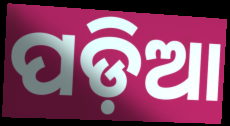
ପଡ଼ିଆ